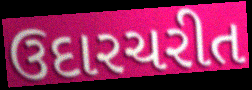
ઉદારચરીત